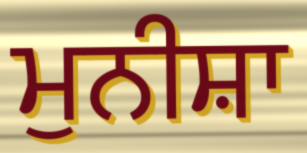
ਮੁਨੀਸ਼ਾ